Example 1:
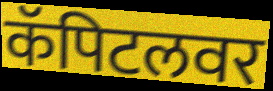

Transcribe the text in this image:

कॅपिटलवर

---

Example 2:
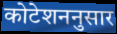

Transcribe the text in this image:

कोटेशननुसार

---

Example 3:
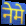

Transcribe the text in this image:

नेमे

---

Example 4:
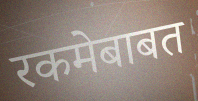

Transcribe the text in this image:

रकमेबाबत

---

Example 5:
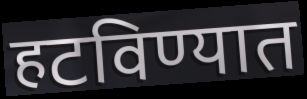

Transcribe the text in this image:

हटविण्यात